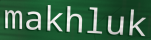
makhluk